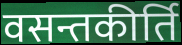
वसन्तकीर्ति